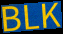
BLK